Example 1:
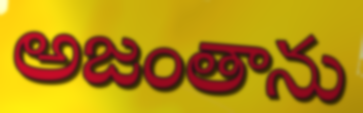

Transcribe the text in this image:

అజంతాను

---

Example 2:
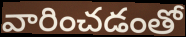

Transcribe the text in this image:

వారించడంతో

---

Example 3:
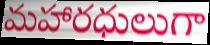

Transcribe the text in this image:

మహారధులుగా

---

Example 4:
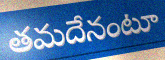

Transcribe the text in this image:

తమదేనంటూ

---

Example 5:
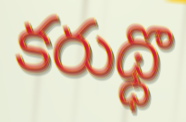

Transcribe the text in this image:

కరుథ్ధొ